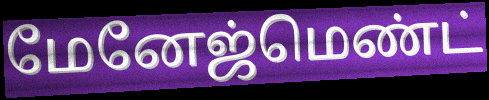
மேனேஜ்மெண்ட்